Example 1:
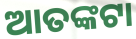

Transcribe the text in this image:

ଆତଙ୍କଟା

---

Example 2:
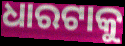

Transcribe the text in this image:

ଧାରଟାକୁ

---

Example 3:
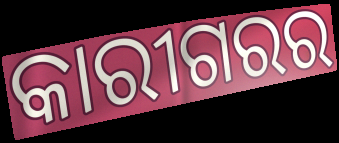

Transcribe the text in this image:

କାରୀଗରର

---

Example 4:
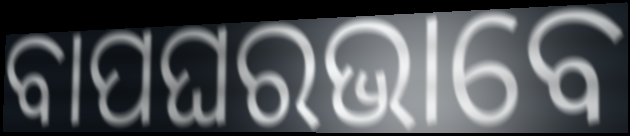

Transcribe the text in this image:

ବାପଘରଭାବେ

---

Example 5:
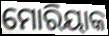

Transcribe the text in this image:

ମୋରିୟାକ